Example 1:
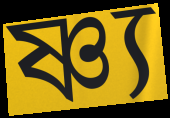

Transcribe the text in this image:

ষ্ণ্য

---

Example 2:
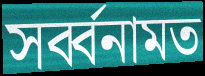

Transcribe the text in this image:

সৰ্ব্বনামত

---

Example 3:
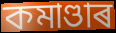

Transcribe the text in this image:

কমাণ্ডাৰ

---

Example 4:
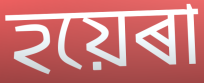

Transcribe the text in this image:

হয়েৰা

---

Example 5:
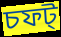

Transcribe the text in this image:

চফট্